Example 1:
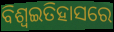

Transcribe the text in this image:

ବିଶ୍ଵଇତିହାସରେ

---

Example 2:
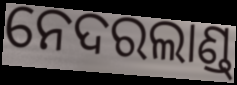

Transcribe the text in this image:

ନେଦରଲାଣ୍ଡ୍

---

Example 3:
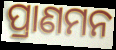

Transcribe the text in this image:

ପ୍ରାଣମନ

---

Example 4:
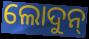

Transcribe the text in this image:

ଲୋଦୁନ୍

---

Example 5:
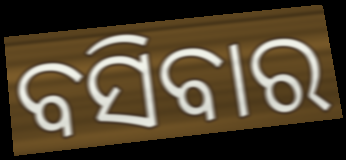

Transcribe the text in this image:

ବସିବାର